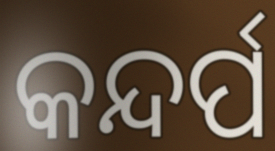
କନ୍ଦର୍ପ